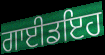
ਗਾਈਡਇਹ